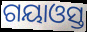
ଗୟାଓସ୍ତ